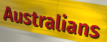
Australians